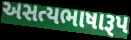
અસત્યભાષારૂપ